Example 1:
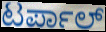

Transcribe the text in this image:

ಟರ್ಪಾಲ್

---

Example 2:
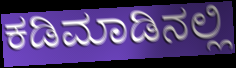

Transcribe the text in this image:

ಕಡಿಮಾಡಿನಲ್ಲಿ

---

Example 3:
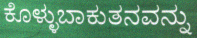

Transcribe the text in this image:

ಕೊಳ್ಳುಬಾಕುತನವನ್ನು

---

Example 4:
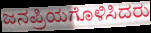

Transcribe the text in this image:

ಜನಪ್ರಿಯಗೊಳಿಸಿದರು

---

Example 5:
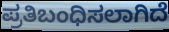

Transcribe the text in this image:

ಪ್ರತಿಬಂಧಿಸಲಾಗಿದೆ